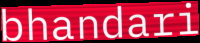
bhandari